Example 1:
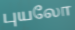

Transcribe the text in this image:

புயலோ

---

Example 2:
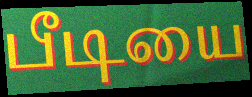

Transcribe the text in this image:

பீடியை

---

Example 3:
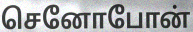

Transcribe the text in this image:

செனோபோன்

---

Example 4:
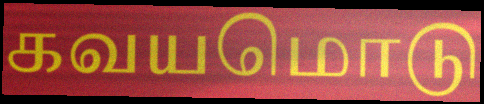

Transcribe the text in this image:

கவயமொடு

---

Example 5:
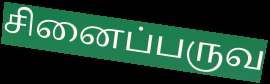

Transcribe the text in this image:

சினைப்பருவ